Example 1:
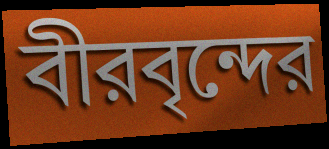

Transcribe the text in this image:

বীরবৃন্দের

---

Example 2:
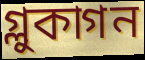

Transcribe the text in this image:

গ্লুকাগন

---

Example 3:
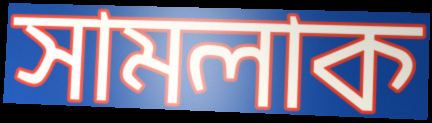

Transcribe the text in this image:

সামলাক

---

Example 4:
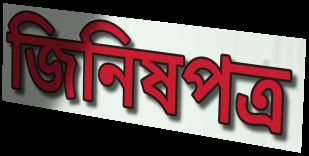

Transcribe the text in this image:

জিনিষপত্র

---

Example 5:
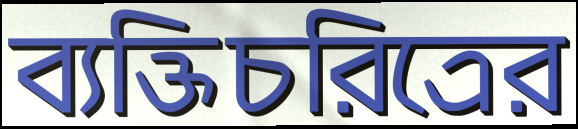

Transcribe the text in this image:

ব্যক্তিচরিত্রের